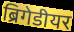
ब्रिगेडीयर